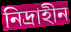
নিদ্রাহীন